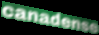
canadense